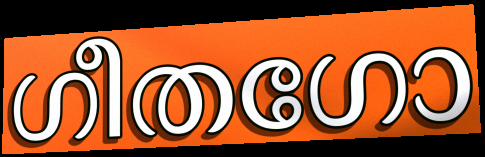
ഗീതഗോ